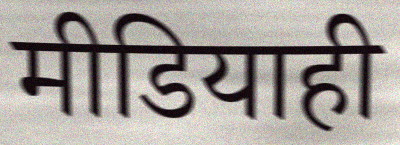
मीडियाही